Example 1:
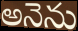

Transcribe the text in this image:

అనెను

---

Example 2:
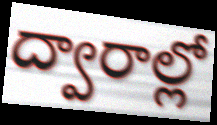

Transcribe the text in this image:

ద్వారాల్లో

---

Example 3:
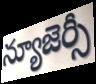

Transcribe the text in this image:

న్యూజెర్సీ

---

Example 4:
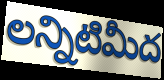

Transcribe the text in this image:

లన్నిటిమీద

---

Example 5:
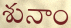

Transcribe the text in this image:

శునాం